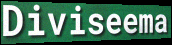
Diviseema